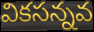
వికసన్నవ